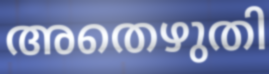
അതെഴുതി